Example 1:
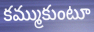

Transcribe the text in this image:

కమ్ముకుంటూ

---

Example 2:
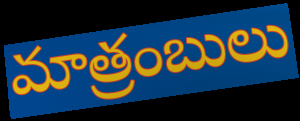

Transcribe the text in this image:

మాత్రంబులు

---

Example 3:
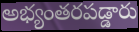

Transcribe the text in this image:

అభ్యంతరపడ్డారు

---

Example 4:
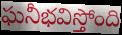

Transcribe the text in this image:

ఘనీభవిస్తోంది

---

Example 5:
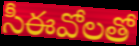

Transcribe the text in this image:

సీఈవోలతో